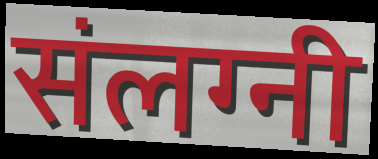
संलग्नी